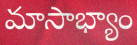
మాసాభ్యాం